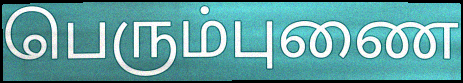
பெரும்புணை